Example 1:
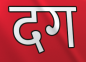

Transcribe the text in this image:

दग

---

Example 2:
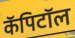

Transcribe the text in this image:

कॅपिटॉल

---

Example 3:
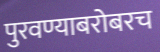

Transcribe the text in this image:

पुरवण्याबरोबरच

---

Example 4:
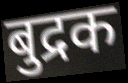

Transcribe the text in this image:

बुद्रक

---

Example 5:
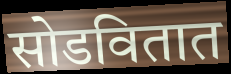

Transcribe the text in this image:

सोडवितात